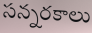
సన్నరకాలు